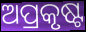
ଅପ୍ରକୃଷ୍ଟ